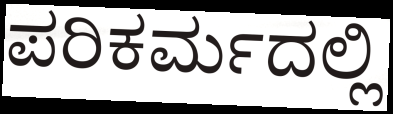
ಪರಿಕರ್ಮದಲ್ಲಿ